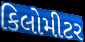
કિલોમીટર